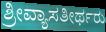
ಶ್ರೀವ್ಯಾಸತೀರ್ಥರು